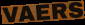
VAERS